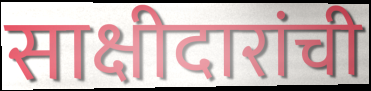
साक्षीदारांची